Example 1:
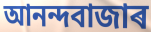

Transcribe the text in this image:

আনন্দবাজাৰ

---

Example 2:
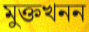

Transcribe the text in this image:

মুক্তখনন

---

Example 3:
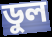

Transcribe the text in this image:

ডুল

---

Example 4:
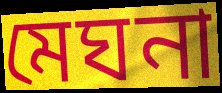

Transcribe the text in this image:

মেঘনা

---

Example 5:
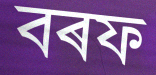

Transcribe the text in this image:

বৰফ